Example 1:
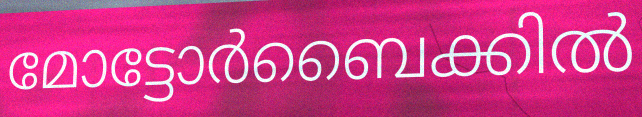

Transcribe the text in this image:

മോട്ടോർബൈക്കിൽ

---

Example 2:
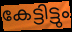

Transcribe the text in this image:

കേട്ടിട്ടും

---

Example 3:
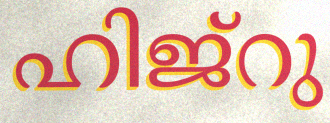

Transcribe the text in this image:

ഹിജ്റു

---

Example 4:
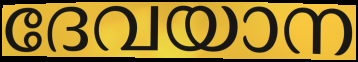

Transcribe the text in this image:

ദേവയാന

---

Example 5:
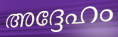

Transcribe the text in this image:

അദ്ദേഹം